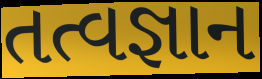
તત્વજ્ઞાન